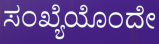
ಸಂಖ್ಯೆಯೊಂದೇ